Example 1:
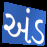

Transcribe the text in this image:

અંડ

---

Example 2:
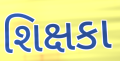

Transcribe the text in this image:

શિક્ષકા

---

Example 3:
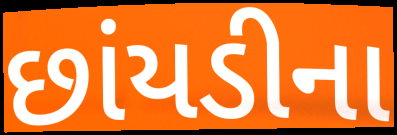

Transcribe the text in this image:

છાંયડીના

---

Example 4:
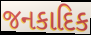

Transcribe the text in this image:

જનકાદિક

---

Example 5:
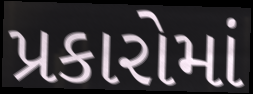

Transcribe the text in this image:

પ્રકારોમાં